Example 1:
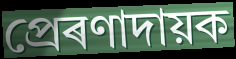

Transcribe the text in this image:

প্ৰেৰণাদায়ক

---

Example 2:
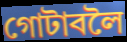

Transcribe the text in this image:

গোটাবলৈ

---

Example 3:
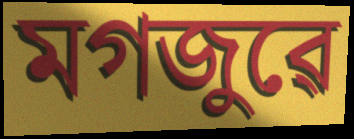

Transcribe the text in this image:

মগজুৱে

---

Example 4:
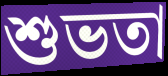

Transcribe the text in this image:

শুভতা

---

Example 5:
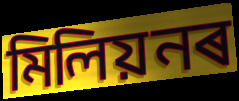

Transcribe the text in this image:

মিলিয়নৰ